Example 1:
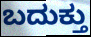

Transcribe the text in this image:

ಬದುಕ್ತು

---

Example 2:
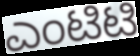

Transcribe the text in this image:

ಎಂಟಿಟಿ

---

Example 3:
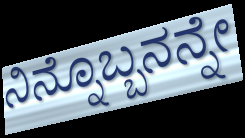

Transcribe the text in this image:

ನಿನ್ನೊಬ್ಬನನ್ನೇ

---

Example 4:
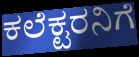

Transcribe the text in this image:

ಕಲೆಕ್ಟರನಿಗೆ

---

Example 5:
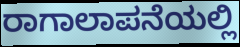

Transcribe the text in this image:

ರಾಗಾಲಾಪನೆಯಲ್ಲಿ